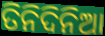
ତିନିଦିନିଆ